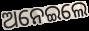
ଅନେଇଲେ